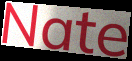
Nate